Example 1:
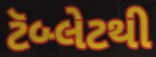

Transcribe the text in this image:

ટૅબ્લેટથી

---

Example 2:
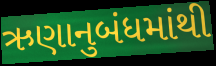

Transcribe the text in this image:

ઋણાનુબંધમાંથી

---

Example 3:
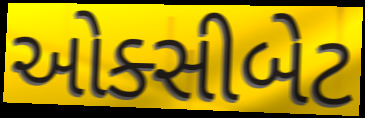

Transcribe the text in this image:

ઓક્સીબેટ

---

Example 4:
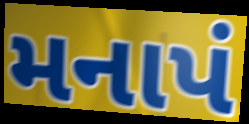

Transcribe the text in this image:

મનાપં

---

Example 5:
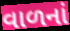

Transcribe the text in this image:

વાળનાં